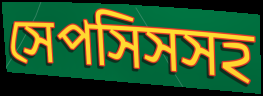
সেপসিসসহ